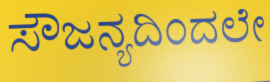
ಸೌಜನ್ಯದಿಂದಲೇ